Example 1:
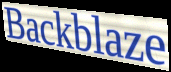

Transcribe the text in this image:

Backblaze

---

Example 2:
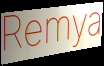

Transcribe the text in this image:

Remya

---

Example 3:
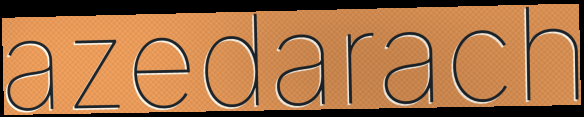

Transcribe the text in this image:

azedarach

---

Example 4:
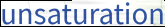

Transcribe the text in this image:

unsaturation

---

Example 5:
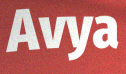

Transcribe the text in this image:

Avya